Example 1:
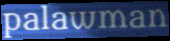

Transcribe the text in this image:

palawman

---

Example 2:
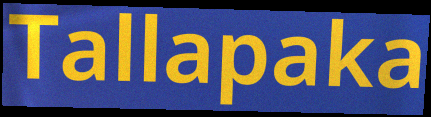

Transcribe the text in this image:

Tallapaka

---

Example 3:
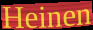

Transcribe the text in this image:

Heinen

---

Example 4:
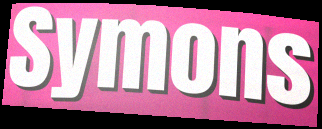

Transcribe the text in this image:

Symons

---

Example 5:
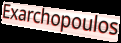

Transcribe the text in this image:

Exarchopoulos